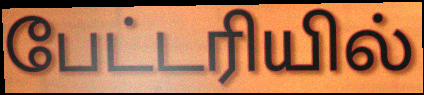
பேட்டரியில்